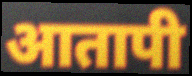
आतापी